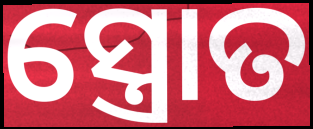
ସ୍ତ୍ରୋତ